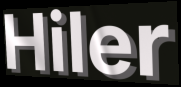
Hiler